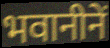
भवानीनें